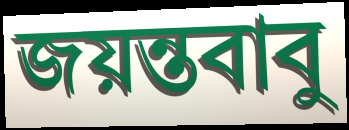
জয়ন্তবাবু